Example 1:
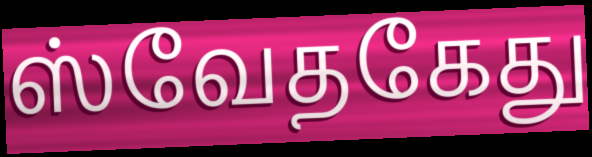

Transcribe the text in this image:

ஸ்வேதகேது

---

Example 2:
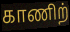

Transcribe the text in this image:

காணிற்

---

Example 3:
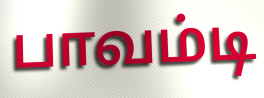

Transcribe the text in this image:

பாவம்டி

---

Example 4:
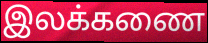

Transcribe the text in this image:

இலக்கணை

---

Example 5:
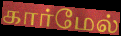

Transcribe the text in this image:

கார்மேல்